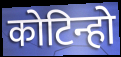
कोटिन्हो